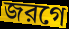
জরগে